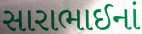
સારાભાઈનાં